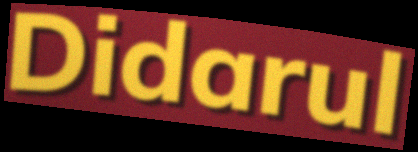
Didarul